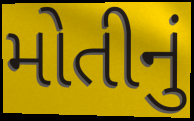
મોતીનું